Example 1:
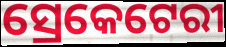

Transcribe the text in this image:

ସ୍ରେକେଟେରୀ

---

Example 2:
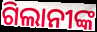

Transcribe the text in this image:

ଗିଲାନୀଙ୍କ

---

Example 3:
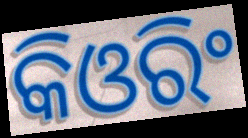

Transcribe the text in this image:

କିଓରିଂ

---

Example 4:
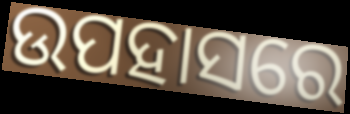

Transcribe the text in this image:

ଉପହାସରେ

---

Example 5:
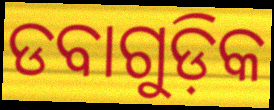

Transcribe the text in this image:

ଡବାଗୁଡ଼ିକ